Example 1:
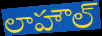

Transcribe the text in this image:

లాహౌల్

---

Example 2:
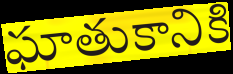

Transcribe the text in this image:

ఘాతుకానికి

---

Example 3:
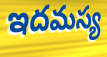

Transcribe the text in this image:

ఇదమస్య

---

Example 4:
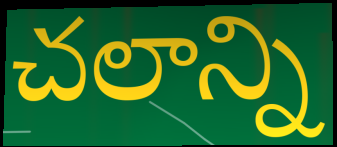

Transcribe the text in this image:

చలాన్ని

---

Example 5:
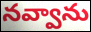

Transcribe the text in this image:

నవ్వాను